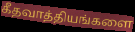
கீதவாத்தியங்களை